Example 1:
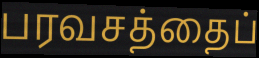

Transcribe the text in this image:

பரவசத்தைப்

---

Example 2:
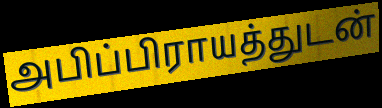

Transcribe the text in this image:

அபிப்பிராயத்துடன்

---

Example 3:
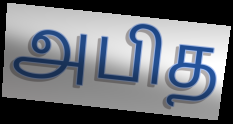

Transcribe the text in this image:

அபித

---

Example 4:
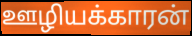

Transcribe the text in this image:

ஊழியக்காரன்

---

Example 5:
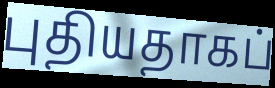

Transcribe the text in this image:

புதியதாகப்